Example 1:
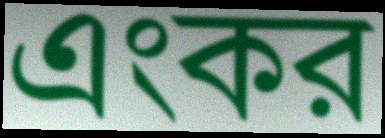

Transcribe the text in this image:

এংকর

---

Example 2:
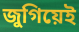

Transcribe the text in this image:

জুগিয়েই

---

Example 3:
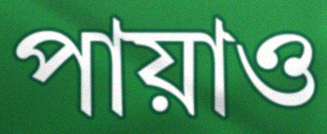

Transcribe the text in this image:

পায়াও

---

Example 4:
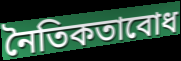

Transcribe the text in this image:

নৈতিকতাবোধ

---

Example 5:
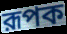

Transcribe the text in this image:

রূপক